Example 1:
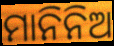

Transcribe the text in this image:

ମାନିନିଅ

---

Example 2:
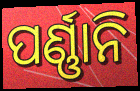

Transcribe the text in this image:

ପର୍ଣ୍ଣାନି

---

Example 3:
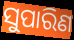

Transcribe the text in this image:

ସୁପାରିଣ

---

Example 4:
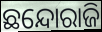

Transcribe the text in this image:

ଛନ୍ଦୋରାଜି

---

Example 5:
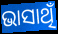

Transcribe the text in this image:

ଭାସାଥିଁ